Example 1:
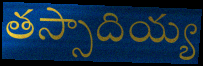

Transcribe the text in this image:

తస్సాదియ్య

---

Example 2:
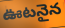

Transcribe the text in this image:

ఊటనైన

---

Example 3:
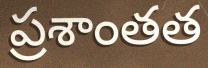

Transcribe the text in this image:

ప్రశాంతత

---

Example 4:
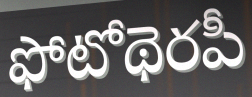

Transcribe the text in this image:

ఫోటోథెరపీ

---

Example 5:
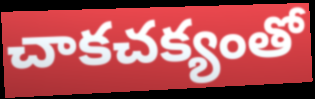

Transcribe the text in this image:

చాకచక్యంతో